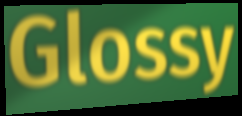
Glossy